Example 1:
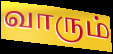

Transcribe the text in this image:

வாரும்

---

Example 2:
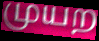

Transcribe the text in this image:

முயற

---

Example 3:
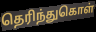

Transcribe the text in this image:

தெரிந்துகொள்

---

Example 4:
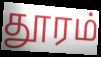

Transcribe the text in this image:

தூரம்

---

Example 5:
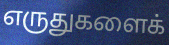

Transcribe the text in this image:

எருதுகளைக்